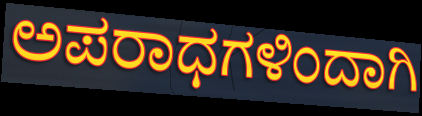
ಅಪರಾಧಗಳಿಂದಾಗಿ